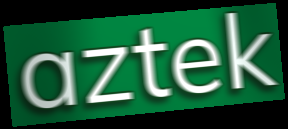
aztek